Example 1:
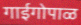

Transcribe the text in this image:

गाईगोपाळ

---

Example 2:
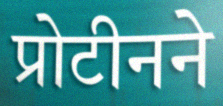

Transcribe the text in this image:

प्रोटीनने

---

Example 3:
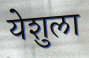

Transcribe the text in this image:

येशुला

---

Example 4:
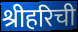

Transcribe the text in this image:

श्रीहरिची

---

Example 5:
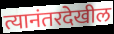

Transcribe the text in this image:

त्यानंतरदेखील